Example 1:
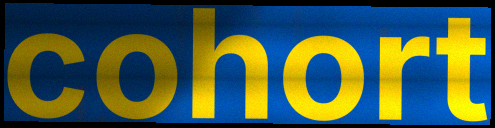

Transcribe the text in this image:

cohort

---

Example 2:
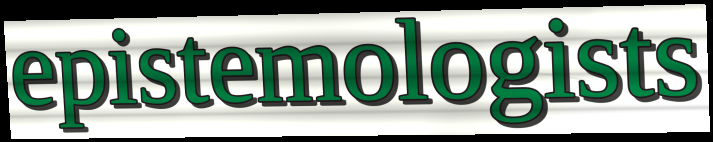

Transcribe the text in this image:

epistemologists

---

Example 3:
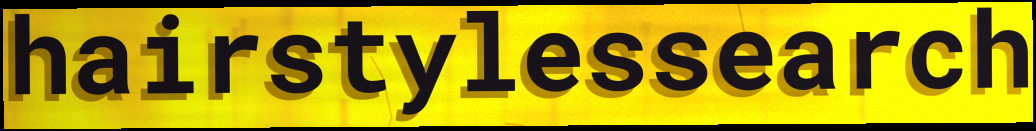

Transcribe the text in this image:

hairstylessearch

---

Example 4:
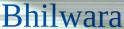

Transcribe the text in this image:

Bhilwara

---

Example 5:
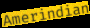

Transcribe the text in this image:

Amerindian